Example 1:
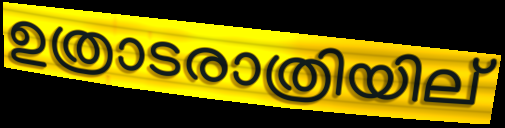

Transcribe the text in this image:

ഉത്രാടരാത്രിയില്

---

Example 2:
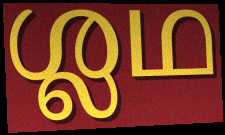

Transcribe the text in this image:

ശ്ലഥ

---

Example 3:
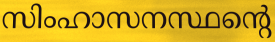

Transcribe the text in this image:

സിംഹാസനസ്ഥന്റെ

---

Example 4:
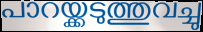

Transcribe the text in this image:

പാറയ്ക്കടുത്തുവച്ചു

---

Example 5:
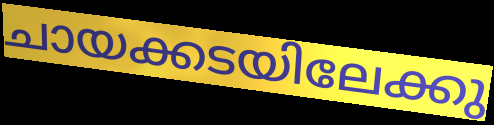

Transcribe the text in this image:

ചായക്കടയിലേക്കു